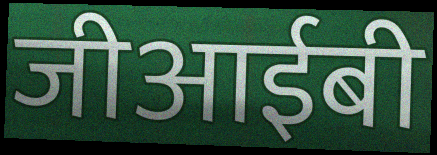
जीआईबी